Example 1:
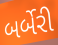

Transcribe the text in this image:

બર્બેરી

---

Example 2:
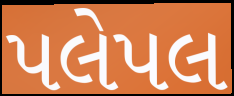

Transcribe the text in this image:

પલેપલ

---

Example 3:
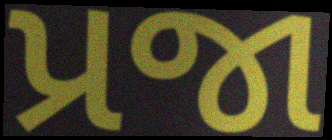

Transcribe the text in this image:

પ્રજા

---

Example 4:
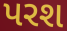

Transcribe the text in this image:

પરશ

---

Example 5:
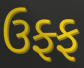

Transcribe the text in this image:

ઉફ્ફ